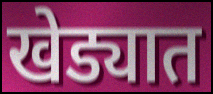
खेड्यात